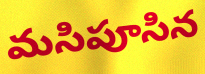
మసిపూసిన